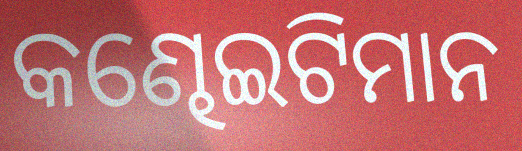
କଣ୍ଢେଇଟିମାନ